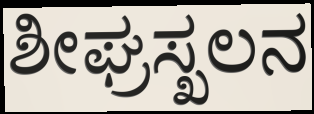
ಶೀಘ್ರಸ್ಖಲನ